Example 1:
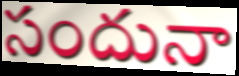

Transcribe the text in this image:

సందునా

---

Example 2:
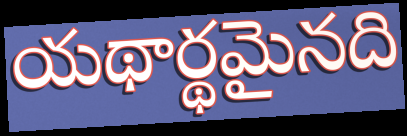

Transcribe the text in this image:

యథార్థమైనది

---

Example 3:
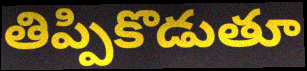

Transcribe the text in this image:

తిప్పికొడుతూ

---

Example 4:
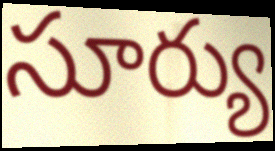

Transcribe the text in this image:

సూర్యు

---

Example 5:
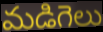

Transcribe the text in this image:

మడిగెలు